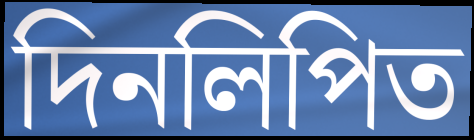
দিনলিপিত